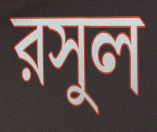
রসুল